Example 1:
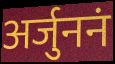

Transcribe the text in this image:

अर्जुननं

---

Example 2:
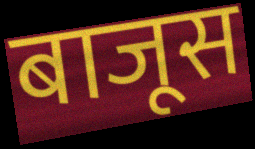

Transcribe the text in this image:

बाजूस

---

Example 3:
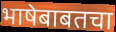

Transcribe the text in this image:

भाषेबाबतचा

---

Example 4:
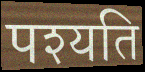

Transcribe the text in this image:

पश्यति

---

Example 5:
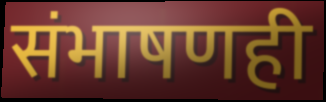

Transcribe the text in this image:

संभाषणही